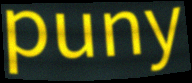
puny